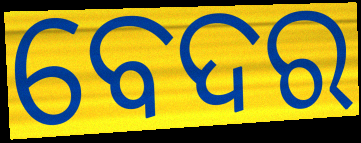
ବେଦର